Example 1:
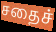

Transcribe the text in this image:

சதைச்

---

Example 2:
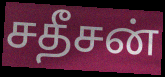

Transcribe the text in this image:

சதீசன்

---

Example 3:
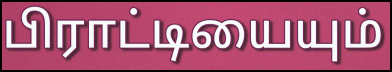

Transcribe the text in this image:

பிராட்டியையும்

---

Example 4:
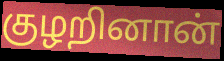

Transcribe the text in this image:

குழறினான்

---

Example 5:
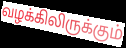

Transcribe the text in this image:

வழக்கிலிருக்கும்